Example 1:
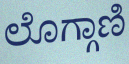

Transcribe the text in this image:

ಲೊಗ್ಗಾಣಿ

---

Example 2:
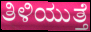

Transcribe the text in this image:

ತಿಳಿಯುತ್ತೆ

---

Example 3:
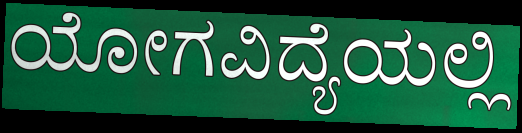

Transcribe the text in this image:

ಯೋಗವಿದ್ಯೆಯಲ್ಲಿ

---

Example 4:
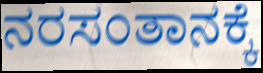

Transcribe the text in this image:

ನರಸಂತಾನಕ್ಕೆ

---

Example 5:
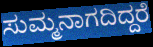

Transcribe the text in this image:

ಸುಮ್ಮನಾಗದಿದ್ದರೆ